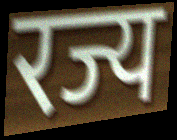
रज्य